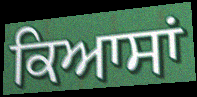
ਕਿਆਸਾਂ